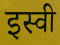
इस्वी